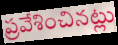
ప్రవేశించినట్లు